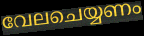
വേലചെയ്യണം